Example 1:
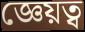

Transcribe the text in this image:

জ্ঞেয়ত্ব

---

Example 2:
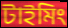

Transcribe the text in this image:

টাইমিং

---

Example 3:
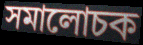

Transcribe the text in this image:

সমালোচক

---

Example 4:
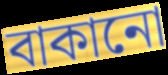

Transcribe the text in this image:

বাকানো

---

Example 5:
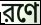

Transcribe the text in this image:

রণে